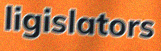
ligislators